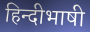
हिन्दीभाषी